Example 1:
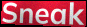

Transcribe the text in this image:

Sneak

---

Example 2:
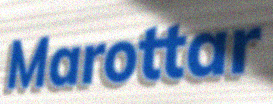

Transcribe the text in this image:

Marottar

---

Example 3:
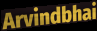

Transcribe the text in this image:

Arvindbhai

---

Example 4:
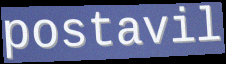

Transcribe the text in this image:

postavil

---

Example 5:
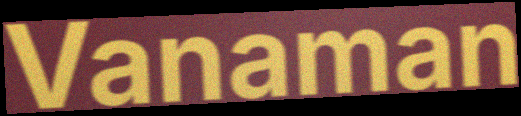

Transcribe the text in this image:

Vanaman